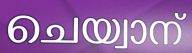
ചെയ്വാന്